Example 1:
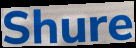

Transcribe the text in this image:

Shure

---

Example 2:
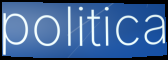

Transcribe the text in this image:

politica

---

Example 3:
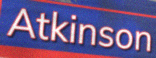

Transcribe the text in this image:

Atkinson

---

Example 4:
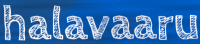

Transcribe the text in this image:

halavaaru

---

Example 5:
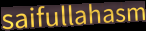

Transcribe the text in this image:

saifullahasm